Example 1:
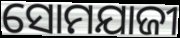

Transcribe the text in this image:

ସୋମଯାଜୀ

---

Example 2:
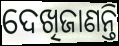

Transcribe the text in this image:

ଦେଖିଜାଣନ୍ତି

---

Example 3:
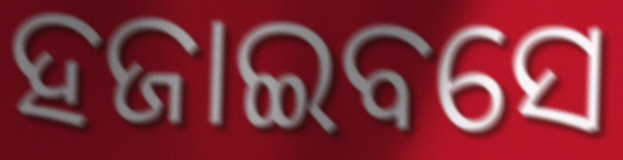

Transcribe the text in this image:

ହଜାଇବସେ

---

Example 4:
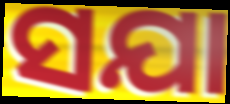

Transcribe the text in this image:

ସଯା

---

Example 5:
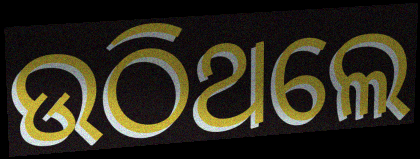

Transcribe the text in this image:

ଉଠିଥଲେ